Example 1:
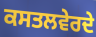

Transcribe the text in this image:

ਕਸਤਲਵੇਰਦੇ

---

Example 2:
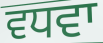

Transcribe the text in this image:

ਵਧਵਾ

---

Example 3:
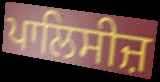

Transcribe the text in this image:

ਪਾਲਿਸੀਜ਼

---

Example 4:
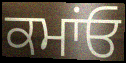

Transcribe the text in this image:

ਕਮਾਂਓ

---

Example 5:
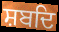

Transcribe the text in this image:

ਸ਼ਬਦਿ